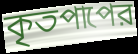
কৃতপাপের